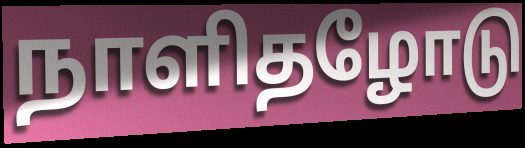
நாளிதழோடு